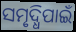
ସମୃଦ୍ଧିପାଇଁ